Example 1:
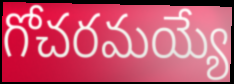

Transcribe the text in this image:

గోచరమయ్యే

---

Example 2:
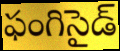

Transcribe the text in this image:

ఫంగిసైడ్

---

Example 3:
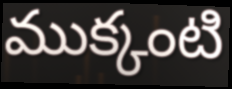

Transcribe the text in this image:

ముక్కంటి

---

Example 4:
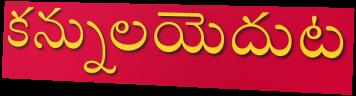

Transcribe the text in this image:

కన్నులయెదుట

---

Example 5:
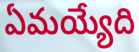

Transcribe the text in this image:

ఏమయ్యేది